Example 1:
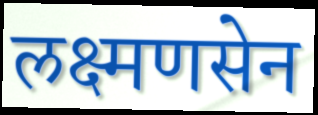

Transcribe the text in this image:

लक्ष्मणसेन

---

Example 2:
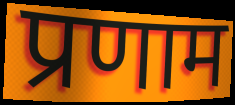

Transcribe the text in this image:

प्रणाम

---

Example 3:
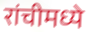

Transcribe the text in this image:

रांचीमध्ये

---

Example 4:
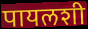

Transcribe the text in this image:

पायलशी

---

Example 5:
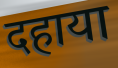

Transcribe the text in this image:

दहाया